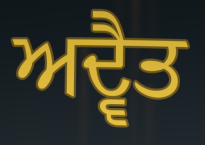
ਅਦ੍ਵੈਤ